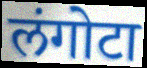
लंगोटा